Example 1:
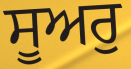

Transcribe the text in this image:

ਸੂਅਰੁ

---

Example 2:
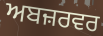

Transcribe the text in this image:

ਅਬਜ਼ਰਵਰ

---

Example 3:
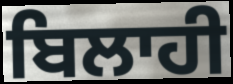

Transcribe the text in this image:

ਬਿਲਾਹੀ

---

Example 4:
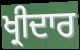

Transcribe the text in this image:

ਖ੍ਰੀਦਾਰ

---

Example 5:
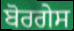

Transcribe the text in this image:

ਬੋਰਗੇਸ